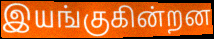
இயங்குகின்றன